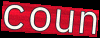
coun